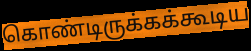
கொண்டிருக்கக்கூடிய